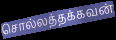
சொல்லத்தக்கவன்